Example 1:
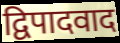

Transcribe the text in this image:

द्विपादवाद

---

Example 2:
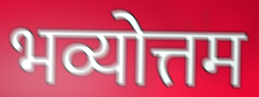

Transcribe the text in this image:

भव्योत्तम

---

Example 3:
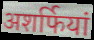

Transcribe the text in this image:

अशर्फियां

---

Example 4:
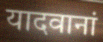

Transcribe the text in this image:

यादवानां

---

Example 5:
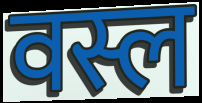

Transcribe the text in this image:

वस्ल